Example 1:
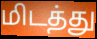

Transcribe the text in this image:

மிடத்து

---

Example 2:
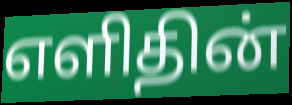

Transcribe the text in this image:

எளிதின்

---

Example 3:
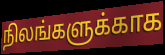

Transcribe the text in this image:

நிலங்களுக்காக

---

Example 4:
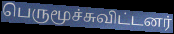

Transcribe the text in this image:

பெருமூச்சுவிட்டனர்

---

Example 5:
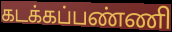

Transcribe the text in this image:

கடக்கப்பண்ணி